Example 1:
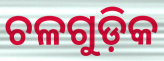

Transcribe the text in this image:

ଚଳଗୁଡ଼ିକ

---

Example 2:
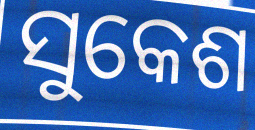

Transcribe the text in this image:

ସୁକେଶ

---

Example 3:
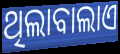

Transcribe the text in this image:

ଥିଲାବାଲାଏ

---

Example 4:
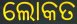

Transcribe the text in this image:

ଲୋକତ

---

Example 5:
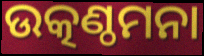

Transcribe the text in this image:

ଉତ୍କଣ୍ଠମନା